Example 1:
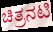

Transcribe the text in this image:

ಚಿತ್ರನಟಿ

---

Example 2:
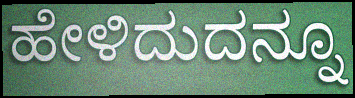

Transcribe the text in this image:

ಹೇಳಿದುದನ್ನೂ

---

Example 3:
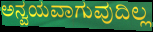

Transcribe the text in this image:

ಅನ್ವಯವಾಗುವುದಿಲ್ಲ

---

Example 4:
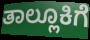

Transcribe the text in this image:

ತಾಲ್ಲೂಕಿಗೆ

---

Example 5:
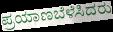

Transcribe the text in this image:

ಪ್ರಯಾಣಬೆಳೆಸಿದರು